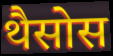
थैसोस